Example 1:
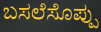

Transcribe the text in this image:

ಬಸಲೆಸೊಪ್ಪು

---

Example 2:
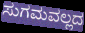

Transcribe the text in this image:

ಸುಗಮವಲ್ಲದ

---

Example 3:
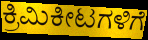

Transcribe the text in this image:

ಕ್ರಿಮಿಕೀಟಗಳಿಗೆ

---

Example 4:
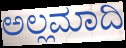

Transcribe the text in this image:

ಅಲ್ಲಮಾದಿ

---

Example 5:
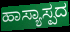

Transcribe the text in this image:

ಹಾಸ್ಯಾಸ್ಪದ